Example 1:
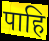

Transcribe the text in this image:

पाहि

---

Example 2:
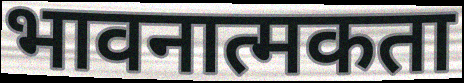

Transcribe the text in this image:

भावनात्मकता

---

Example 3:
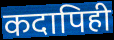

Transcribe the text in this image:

कदापिही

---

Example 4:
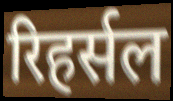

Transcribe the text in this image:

रिहर्सल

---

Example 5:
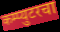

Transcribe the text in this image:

कम्प्युटरचा